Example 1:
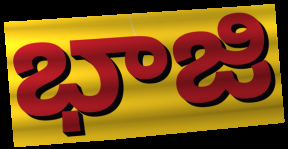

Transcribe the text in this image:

భాజి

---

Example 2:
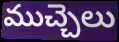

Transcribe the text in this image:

ముచ్చెలు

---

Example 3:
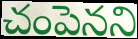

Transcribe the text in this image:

చంపెనని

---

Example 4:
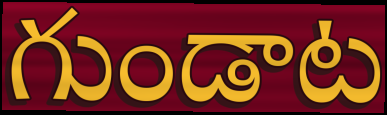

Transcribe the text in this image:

గుండాట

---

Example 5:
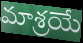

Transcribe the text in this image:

మాశ్రయే